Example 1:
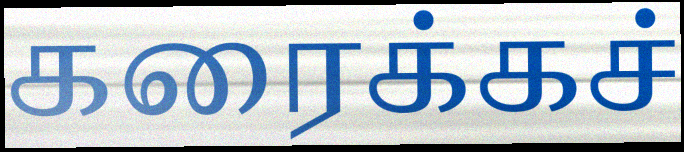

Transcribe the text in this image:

கரைக்கச்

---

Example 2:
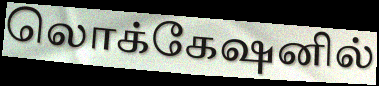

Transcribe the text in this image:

லொக்கேஷனில்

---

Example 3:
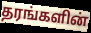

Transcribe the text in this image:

தரங்களின்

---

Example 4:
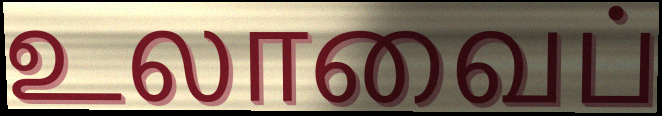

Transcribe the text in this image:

உலாவைப்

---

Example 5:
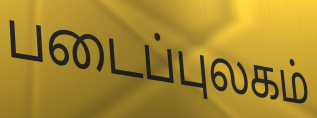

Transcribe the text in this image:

படைப்புலகம்